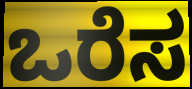
ಒರೆಸ